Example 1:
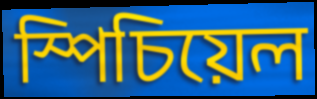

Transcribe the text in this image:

স্পিচিয়েল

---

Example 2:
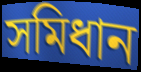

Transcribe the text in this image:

সমিধান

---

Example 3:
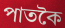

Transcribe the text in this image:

পাতকৈ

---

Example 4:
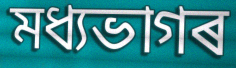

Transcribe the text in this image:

মধ্যভাগৰ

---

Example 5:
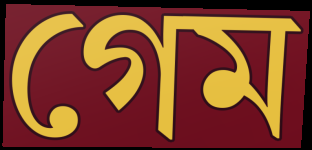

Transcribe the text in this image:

গেম